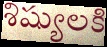
శిష్యులకి